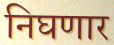
निघणार